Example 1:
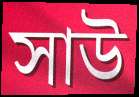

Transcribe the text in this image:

সাউ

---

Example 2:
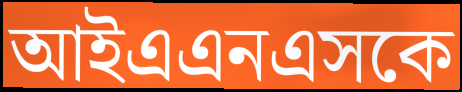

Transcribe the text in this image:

আইএএনএসকে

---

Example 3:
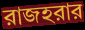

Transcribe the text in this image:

রাজহরার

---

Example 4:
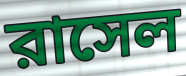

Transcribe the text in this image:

রাসেল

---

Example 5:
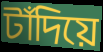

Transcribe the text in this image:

টাঁদিয়ে